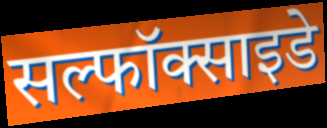
सल्फॉक्साइडे